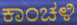
ಕಾಂಚಳಿ